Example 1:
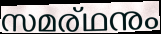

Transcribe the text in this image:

സമര്ഥനും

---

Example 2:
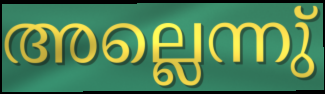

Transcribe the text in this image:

അല്ലെന്നു്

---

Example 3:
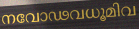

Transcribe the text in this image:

നവോഢവധൂമിവ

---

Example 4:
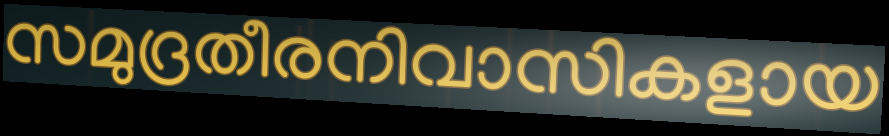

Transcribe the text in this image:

സമുദ്രതീരനിവാസികളായ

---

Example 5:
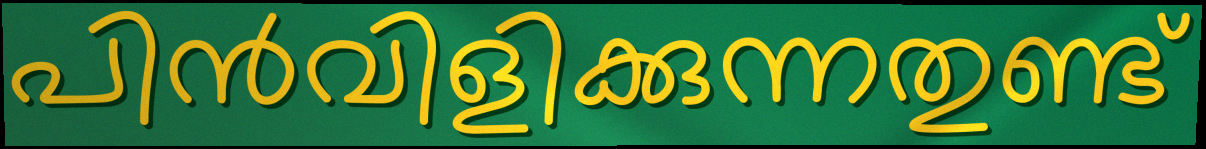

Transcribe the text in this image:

പിൻവിളിക്കുന്നതുണ്ട്